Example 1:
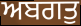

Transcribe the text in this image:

ਅਬਗਤੁ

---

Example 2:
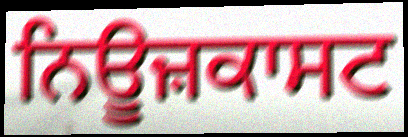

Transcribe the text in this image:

ਨਿਊਜ਼ਕਾਸਟ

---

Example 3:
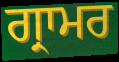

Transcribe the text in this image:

ਗ੍ਰਾਮਰ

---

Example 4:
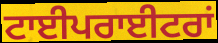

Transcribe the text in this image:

ਟਾਈਪਰਾਈਟਰਾਂ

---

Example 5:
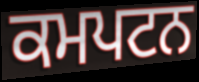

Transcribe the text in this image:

ਕਮਪਟਨ